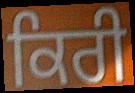
ਕਿਰੀ